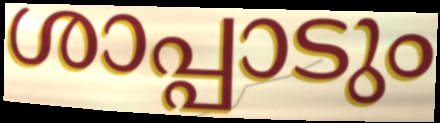
ശാപ്പാടും